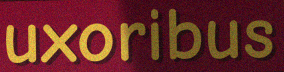
uxoribus